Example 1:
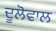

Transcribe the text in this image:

ਦੂਲੋਵਾਲ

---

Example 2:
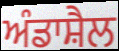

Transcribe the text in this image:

ਅੰਡਾਸ਼ੈਲ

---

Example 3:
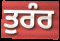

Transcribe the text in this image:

ਤੁਰੰਰ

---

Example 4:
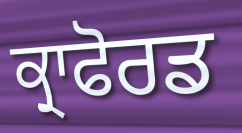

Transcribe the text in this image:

ਕ੍ਰਾਫੋਰਡ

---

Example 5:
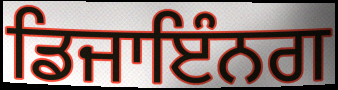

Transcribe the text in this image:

ਡਿਜਾਇੰਨਗ